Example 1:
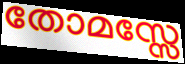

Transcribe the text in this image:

തോമസ്സേ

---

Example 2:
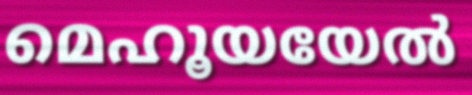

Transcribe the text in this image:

മെഹൂയയേൽ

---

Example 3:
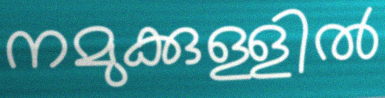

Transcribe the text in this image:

നമുക്കുള്ളിൽ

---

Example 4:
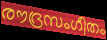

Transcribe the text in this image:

രൗദ്രസംഗീതം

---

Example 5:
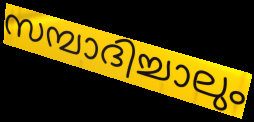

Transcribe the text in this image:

സമ്പാദിച്ചാലും